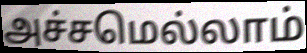
அச்சமெல்லாம்